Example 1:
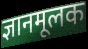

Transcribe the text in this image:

ज्ञानमूलक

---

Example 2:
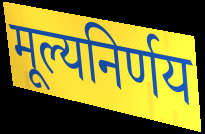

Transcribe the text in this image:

मूल्यनिर्णय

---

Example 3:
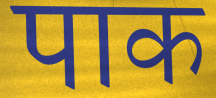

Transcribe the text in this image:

पाक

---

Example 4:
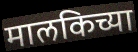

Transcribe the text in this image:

मालकिच्या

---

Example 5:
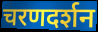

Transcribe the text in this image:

चरणदर्शन